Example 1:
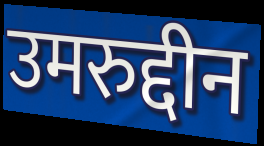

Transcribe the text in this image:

उमरुद्दीन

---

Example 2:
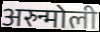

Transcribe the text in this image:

अरुन्मोली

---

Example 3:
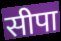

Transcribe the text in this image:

सीपा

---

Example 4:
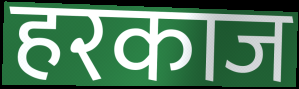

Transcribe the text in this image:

हरकाज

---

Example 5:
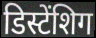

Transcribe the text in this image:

डिस्टेंशिग